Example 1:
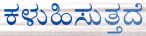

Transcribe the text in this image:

ಕಳುಹಿಸುತ್ತದೆ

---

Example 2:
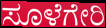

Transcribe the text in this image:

ಸೂಳೆಗೇರಿ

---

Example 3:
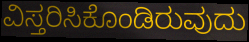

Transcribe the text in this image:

ವಿಸ್ತರಿಸಿಕೊಂಡಿರುವುದು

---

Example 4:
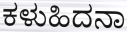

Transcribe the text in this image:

ಕಳುಹಿದನಾ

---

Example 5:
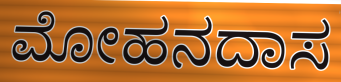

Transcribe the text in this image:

ಮೋಹನದಾಸ